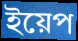
ইয়েপ